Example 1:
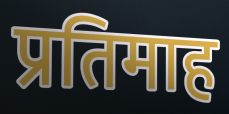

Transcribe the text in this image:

प्रतिमाह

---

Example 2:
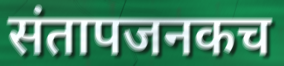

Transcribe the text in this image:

संतापजनकच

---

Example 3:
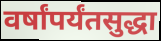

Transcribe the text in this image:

वर्षांपर्यंतसुद्धा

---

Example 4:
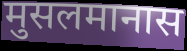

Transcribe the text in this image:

मुसलमानास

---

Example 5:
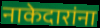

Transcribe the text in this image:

नाकेदारांना